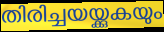
തിരിച്ചയയ്ക്കുകയും